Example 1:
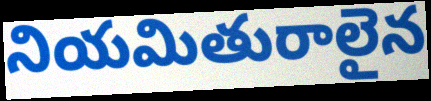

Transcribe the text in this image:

నియమితురాలైన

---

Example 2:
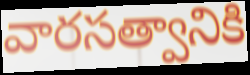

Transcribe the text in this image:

వారసత్వానికి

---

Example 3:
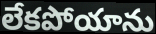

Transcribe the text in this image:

లేకపోయాను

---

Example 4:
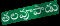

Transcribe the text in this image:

తలవూపాడు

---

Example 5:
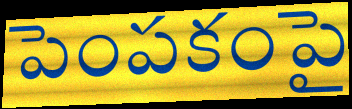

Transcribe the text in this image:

పెంపకంపై